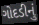
ગોદડીનું